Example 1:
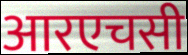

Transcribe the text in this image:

आरएचसी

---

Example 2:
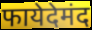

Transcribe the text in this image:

फायेदेमंद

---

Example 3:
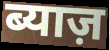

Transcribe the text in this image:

ब्याज़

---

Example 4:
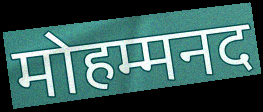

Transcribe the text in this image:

मोहम्मनद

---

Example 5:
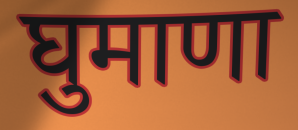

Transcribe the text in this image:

घुमाणा